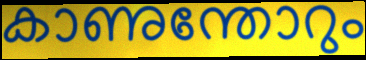
കാണുന്തോറും